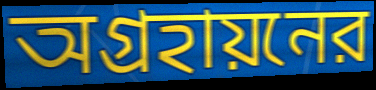
অগ্রহায়নের